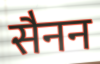
सैनन